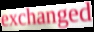
exchanged